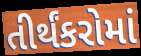
તીર્થંકરોમાં